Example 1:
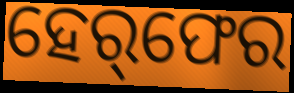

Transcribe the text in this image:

ହେର୍‌ଫେର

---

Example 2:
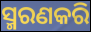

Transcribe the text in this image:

ସ୍ମରଣକରି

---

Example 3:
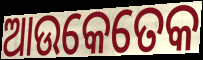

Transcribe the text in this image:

ଆଉକେତେକ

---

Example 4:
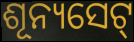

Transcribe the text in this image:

ଶୂନ୍ୟସେଟ୍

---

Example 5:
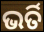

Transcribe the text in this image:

ଭର୍ତି